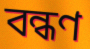
বন্ধণ